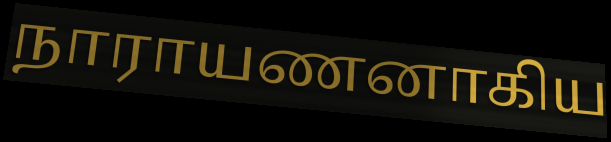
நாராயணனாகிய